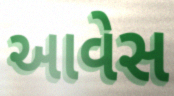
આવેસ